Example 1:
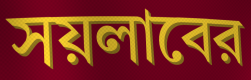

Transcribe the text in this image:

সয়লাবের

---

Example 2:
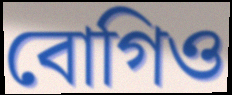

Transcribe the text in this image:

বোগিও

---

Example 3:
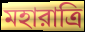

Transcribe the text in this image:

মহারাত্রি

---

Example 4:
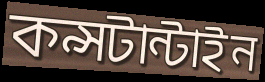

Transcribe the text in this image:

কন্সটান্টাইন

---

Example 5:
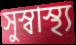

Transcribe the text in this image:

সুস্বাস্থ্য